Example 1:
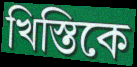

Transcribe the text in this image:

খিস্তিকে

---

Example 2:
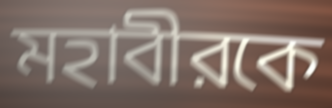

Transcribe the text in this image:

মহাবীরকে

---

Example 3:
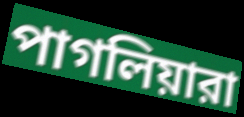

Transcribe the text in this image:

পাগলিয়ারা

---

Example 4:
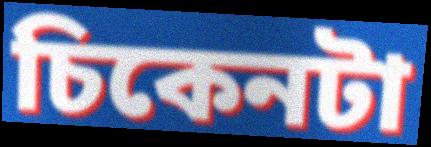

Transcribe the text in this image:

চিকেনটা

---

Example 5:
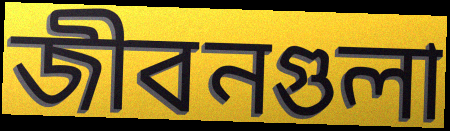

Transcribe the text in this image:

জীবনগুলা